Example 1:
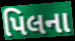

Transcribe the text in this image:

પિલના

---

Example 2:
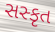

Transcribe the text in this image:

સસ્કૃત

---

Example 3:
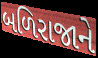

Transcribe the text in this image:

બળિરાજાને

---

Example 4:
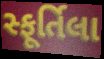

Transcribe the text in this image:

સ્ફૂર્તિલા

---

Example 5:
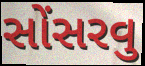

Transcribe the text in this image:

સોંસરવુ